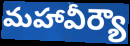
మహావీర్యౌ